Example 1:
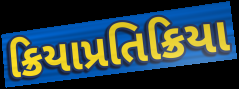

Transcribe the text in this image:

ક્રિયાપ્રતિક્રિયા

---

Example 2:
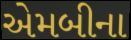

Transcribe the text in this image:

એમબીના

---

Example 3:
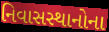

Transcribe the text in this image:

નિવાસસ્થાનોના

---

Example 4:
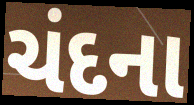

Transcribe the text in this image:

ચંદના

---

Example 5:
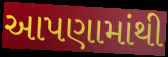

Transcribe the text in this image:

આપણામાંથી